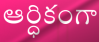
ఆర్ధికంగా